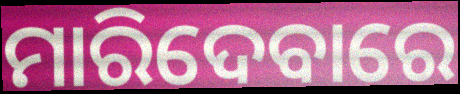
ମାରିଦେବାରେ